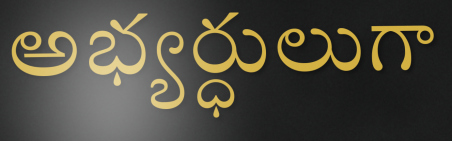
అభ్యర్ధులుగా